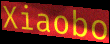
Xiaobo